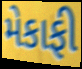
મેકાફી